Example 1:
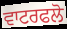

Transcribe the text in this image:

ਵਾਟਰਫਲੋ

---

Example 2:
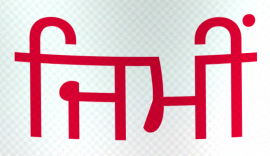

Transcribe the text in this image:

ਜਿਮੀਂ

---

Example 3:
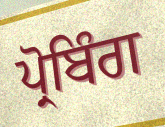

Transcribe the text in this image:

ਪ੍ਰੋਬਿੰਗ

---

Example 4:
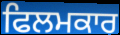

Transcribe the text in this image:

ਫਿਲਮਕਾਰ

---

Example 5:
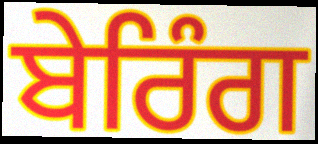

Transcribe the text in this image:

ਬੇਰਿੰਗ